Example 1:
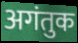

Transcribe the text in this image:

अगंतुक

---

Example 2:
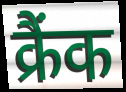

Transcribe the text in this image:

क्रैंक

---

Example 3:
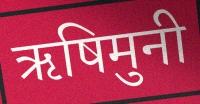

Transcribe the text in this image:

ऋषिमुनी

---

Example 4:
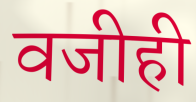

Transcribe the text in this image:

वजीही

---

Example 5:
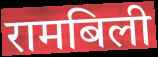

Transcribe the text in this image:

रामबिली